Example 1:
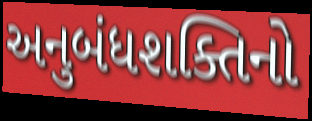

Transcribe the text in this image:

અનુબંધશક્તિનો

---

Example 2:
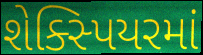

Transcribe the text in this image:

શેક્સ્પિયરમાં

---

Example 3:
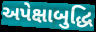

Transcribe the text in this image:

અપેક્ષાબુદ્ધિ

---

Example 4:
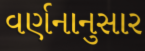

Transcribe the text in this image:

વર્ણનાનુસાર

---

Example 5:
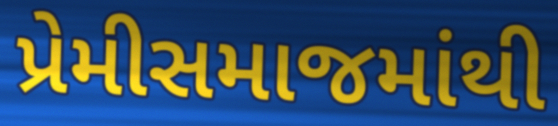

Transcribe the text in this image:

પ્રેમીસમાજમાંથી